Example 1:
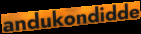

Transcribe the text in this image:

andukondidde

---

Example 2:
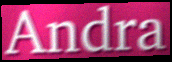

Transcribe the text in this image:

Andra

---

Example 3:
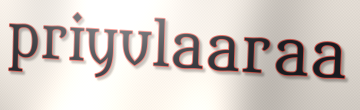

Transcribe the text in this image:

priyulaaraa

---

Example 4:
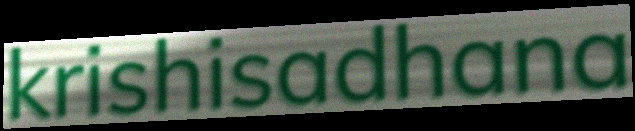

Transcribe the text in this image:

krishisadhana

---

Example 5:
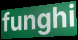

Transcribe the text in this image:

funghi